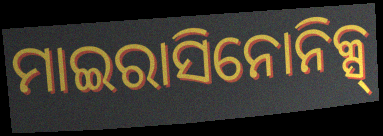
ମାଇରାସିନୋନିକ୍ସ୍